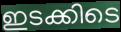
ഇടക്കിടെ